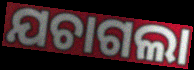
ଯଚାଗଲା